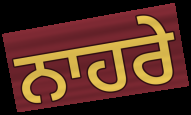
ਨਾਹਰੇ